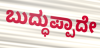
ಬುದ್ಧುಪ್ಪಾದೇ